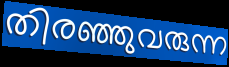
തിരഞ്ഞുവരുന്ന